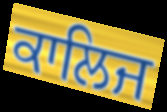
ਕਾਲਿਜ